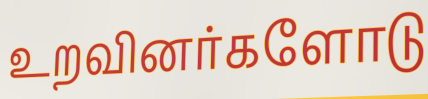
உறவினர்களோடு